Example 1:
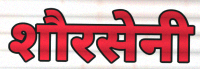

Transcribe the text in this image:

शौरसेनी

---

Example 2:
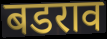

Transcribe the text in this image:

बडराव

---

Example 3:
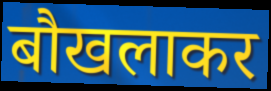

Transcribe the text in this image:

बौखलाकर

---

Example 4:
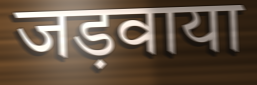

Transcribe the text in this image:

जड़वाया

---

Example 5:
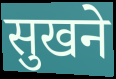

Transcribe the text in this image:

सुखने